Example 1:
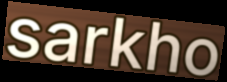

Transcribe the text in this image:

sarkho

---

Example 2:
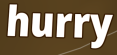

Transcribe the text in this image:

hurry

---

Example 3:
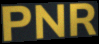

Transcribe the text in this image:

PNR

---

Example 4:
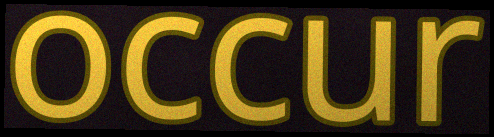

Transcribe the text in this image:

occur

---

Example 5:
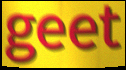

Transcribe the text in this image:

geet